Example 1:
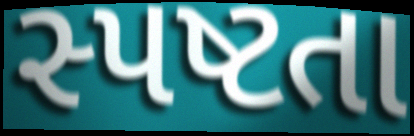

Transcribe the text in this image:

સ્પષ્ટતા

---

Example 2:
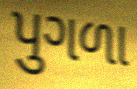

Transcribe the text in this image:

પુગળા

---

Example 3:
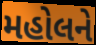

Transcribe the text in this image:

મહોલને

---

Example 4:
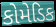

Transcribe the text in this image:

કોમેડિક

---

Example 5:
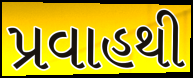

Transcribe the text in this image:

પ્રવાહથી